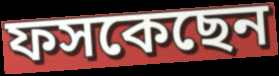
ফসকেছেন